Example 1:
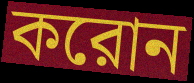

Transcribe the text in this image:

করোন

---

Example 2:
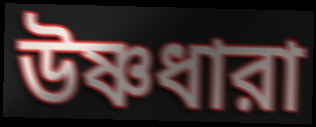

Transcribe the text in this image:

উষ্ণধারা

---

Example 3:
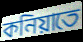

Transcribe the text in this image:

কনিয়াতে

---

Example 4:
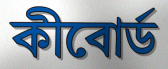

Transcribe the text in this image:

কীবোর্ড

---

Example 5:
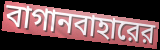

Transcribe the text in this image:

বাগানবাহারের